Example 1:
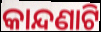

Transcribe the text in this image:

କାନ୍ଦଣାଟି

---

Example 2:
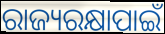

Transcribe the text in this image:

ରାଜ୍ୟରକ୍ଷାପାଇଁ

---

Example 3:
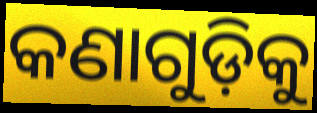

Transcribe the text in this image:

କଣାଗୁଡ଼ିକୁ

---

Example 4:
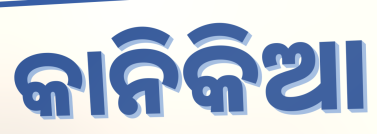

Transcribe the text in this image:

କାନିକିଆ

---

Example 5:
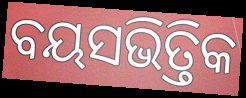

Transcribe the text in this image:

ବୟସଭିତ୍ତିକ